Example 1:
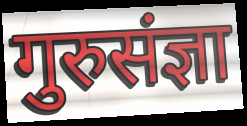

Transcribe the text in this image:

गुरुसंज्ञा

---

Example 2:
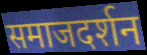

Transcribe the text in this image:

समाजदर्शन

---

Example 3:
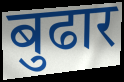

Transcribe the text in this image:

बुढार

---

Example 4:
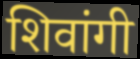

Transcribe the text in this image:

शिवांगी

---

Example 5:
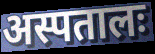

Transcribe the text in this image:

अस्पतालः